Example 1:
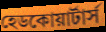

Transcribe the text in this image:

হেডকোয়ার্টার্স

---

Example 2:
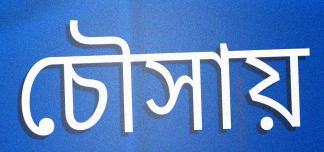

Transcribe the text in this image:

চৌসায়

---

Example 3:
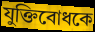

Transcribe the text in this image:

যুক্তিবোধকে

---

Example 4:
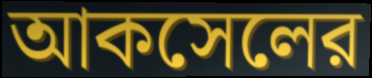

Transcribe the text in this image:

আকসেলের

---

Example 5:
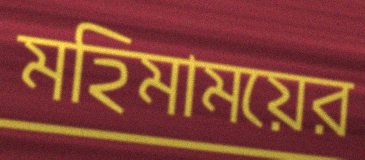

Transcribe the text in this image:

মহিমাময়ের